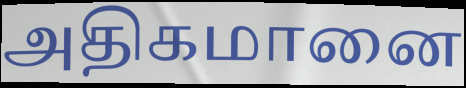
அதிகமானை